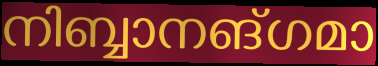
നിബ്ബാനങ്ഗമാ